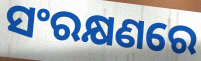
ସଂରକ୍ଷଣରେ